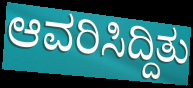
ಆವರಿಸಿದ್ದಿತು